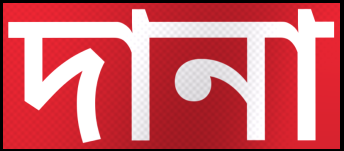
দানা